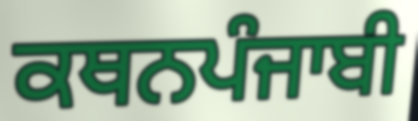
ਕਥਨਪੰਜਾਬੀ